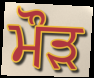
ਮੌਡ਼